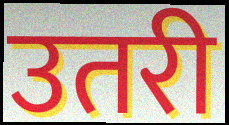
उतरी